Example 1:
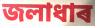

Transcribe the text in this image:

জলাধাৰ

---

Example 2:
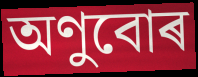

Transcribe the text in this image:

অণুবোৰ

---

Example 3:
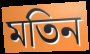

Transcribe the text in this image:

মতিন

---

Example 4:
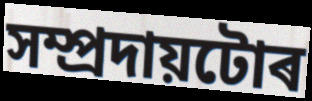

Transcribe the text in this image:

সম্প্ৰদায়টোৰ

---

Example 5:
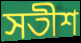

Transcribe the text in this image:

সতীশ